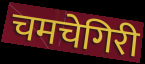
चमचेगिरी